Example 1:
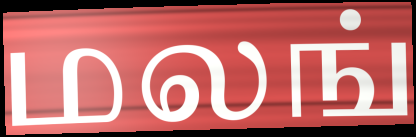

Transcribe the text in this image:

மலங்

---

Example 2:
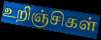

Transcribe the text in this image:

உறிஞ்சிகள்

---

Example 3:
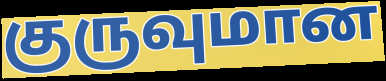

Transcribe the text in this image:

குருவுமான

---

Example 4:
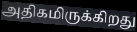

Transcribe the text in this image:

அதிகமிருக்கிறது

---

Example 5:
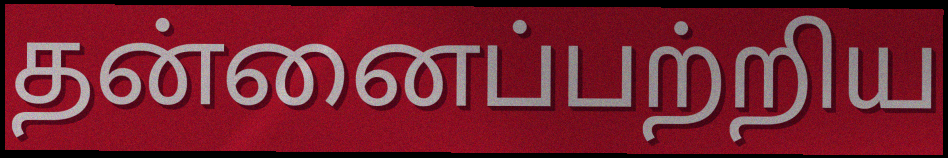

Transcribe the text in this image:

தன்னைப்பற்றிய